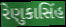
રેણુકાસિંહ